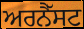
ਅਰਨੈੱਸਟ